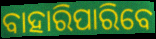
ବାହାରିପାରିବେ